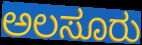
ಅಲಸೂರು